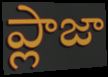
ప్లాజా